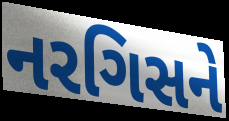
નરગિસને